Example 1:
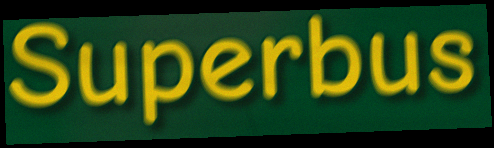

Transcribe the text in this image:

Superbus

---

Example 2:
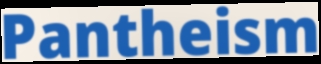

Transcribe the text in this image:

Pantheism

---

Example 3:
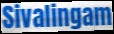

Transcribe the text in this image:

Sivalingam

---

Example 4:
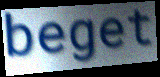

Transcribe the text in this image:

beget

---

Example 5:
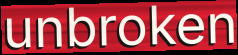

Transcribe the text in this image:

unbroken